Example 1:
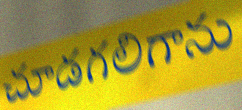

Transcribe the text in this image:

చూడగలిగాను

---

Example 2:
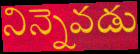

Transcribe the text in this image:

నిన్నెవడు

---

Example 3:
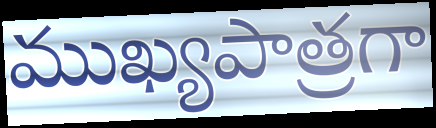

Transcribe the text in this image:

ముఖ్యపాత్రగా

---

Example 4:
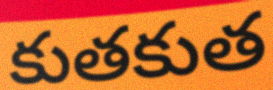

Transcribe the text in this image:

కుతకుత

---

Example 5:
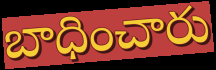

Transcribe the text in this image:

బాధించారు